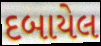
દબાયેલ